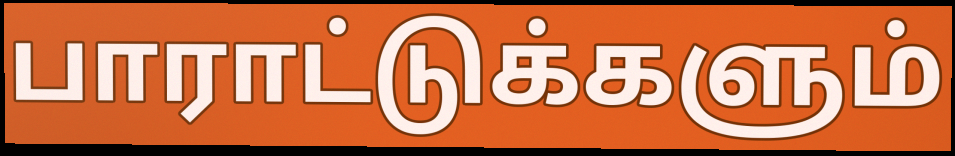
பாராட்டுக்களும்